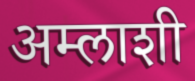
अम्लाशी